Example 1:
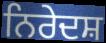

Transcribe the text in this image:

ਨਿਰੇਦਸ਼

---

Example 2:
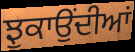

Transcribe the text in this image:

ਝੁਕਾਉਂਦੀਆਂ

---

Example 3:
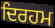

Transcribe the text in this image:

ਦਿਰਹਮ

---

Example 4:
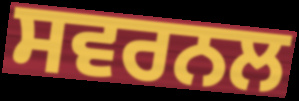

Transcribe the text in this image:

ਸਵਰਨਲ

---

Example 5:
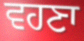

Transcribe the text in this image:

ਵਹਣਾ